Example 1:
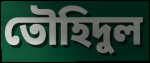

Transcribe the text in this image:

তৌহিদুল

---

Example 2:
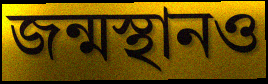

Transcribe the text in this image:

জন্মস্থানও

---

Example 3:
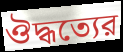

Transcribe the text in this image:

ঔদ্ধত্যের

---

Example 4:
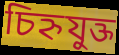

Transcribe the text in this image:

চিহ্নযুক্ত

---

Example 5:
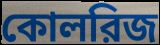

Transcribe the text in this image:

কোলরিজ